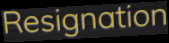
Resignation